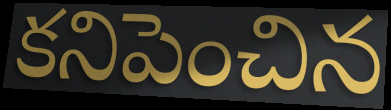
కనిపెంచిన